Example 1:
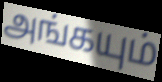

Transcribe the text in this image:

அங்கயும்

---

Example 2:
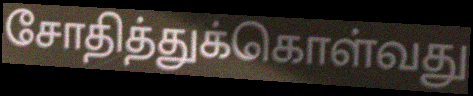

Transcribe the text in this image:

சோதித்துக்கொள்வது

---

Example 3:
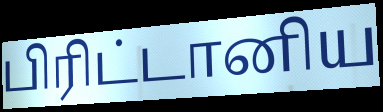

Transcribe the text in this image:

பிரிட்டானிய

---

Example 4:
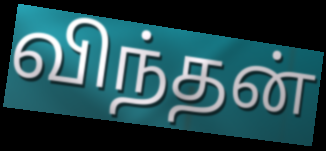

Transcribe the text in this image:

விந்தன்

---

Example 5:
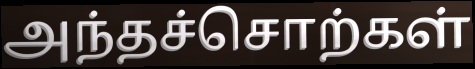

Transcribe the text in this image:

அந்தச்சொற்கள்